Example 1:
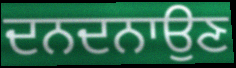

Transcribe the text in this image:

ਦਨਦਨਾਉਣ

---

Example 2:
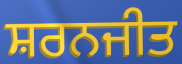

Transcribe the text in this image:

ਸ਼ਰਨਜੀਤ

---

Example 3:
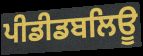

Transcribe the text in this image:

ਪੀਡੀਡਬਲਿਊ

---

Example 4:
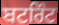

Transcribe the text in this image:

ਬਟਰਿੰਟ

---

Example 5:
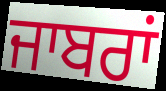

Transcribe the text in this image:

ਜਾਬਰਾਂ